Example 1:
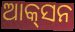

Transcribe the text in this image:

ଆକ୍‌ସନ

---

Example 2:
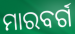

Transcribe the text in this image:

ମାରବର୍ଗ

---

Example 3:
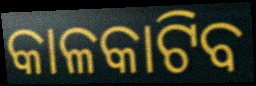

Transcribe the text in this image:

କାଳକାଟିବ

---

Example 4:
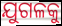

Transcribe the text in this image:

ଯୁଗଳକୁ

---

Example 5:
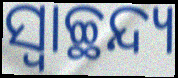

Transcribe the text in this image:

ସ୍ୱାଚ୍ଛନ୍ଦ୍ୟ